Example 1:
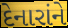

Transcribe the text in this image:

દેનારાંને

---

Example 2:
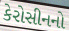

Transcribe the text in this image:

કેરોસીનનો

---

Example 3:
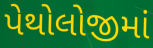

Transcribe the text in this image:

પેથોલોજીમાં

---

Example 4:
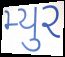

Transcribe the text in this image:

મ્યુર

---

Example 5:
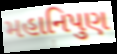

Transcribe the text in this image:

મહાનિપુણ